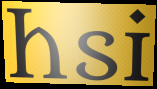
hsi